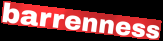
barrenness